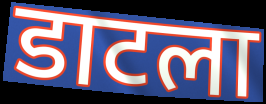
डाटला